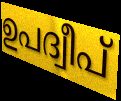
ഉപദ്വീപ്